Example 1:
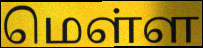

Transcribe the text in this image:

மெள்ள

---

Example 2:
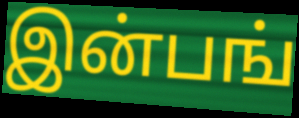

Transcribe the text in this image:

இன்பங்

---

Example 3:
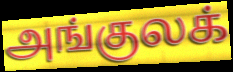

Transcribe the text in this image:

அங்குலக்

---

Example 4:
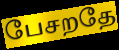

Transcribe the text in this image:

பேசறதே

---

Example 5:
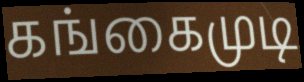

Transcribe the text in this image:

கங்கைமுடி